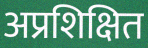
अप्रशिक्षित